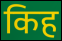
किह